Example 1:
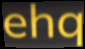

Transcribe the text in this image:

ehq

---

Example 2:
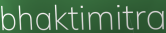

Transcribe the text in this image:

bhaktimitra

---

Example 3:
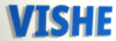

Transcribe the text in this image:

VISHE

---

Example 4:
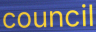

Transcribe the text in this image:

council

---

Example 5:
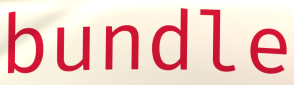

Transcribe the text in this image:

bundle